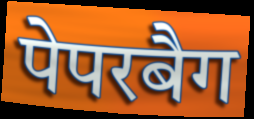
पेपरबैग